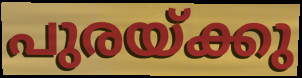
പുരയ്ക്കു